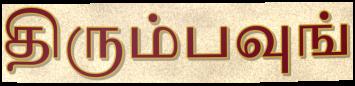
திரும்பவுங்